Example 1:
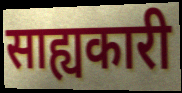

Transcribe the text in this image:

साह्यकारी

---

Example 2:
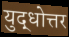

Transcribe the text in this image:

युद्धोत्तर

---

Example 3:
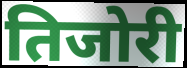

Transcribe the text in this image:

तिजोरी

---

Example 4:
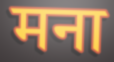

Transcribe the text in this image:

मना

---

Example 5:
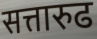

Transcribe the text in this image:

सत्तारुढ